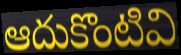
ఆదుకొంటివి